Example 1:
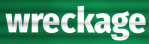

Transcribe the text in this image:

wreckage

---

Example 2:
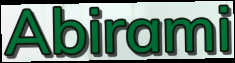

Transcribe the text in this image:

Abirami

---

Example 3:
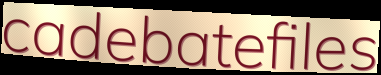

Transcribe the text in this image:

cadebatefiles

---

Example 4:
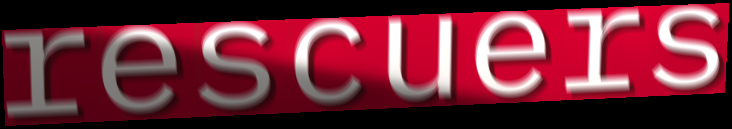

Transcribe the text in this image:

rescuers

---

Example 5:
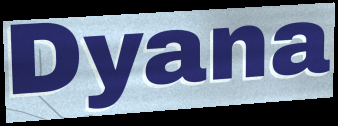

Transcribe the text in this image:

Dyana